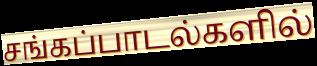
சங்கப்பாடல்களில்